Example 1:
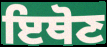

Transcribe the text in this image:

ਇਥੋਣ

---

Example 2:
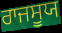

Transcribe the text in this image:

ਰਾਜਸੂਯ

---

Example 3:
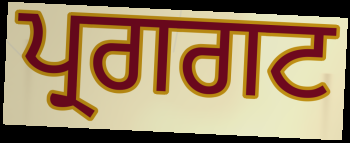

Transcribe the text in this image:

ਪ੍ਰਗਗਟ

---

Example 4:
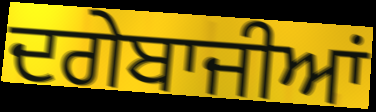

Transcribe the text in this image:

ਦਗੇਬਾਜੀਆਂ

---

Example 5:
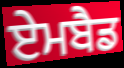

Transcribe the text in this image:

ਏਮਬੈਡ